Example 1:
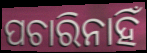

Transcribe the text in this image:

ପଚାରିନାହିଁ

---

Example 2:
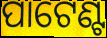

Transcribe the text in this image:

ପାଟେଣ୍ଟ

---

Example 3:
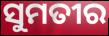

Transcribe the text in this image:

ସୁମତୀର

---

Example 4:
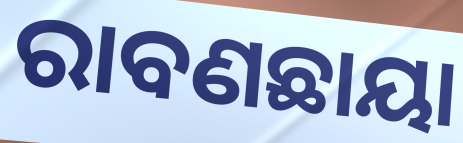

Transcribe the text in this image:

ରାବଣଛାୟା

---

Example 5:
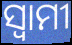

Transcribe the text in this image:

ସ୍ବାମୀ